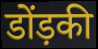
डोंड़की